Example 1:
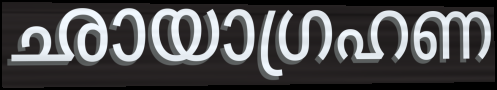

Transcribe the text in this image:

ഛായാഗ്രഹണ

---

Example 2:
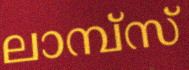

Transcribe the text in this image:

ലാമ്പ്സ്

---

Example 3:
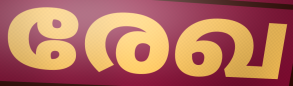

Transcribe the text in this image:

രേഖ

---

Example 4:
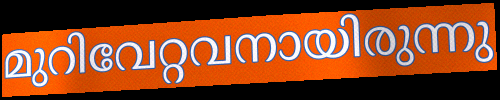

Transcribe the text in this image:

മുറിവേറ്റവനായിരുന്നു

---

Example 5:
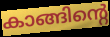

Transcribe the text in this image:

കാങ്ങിന്റെ